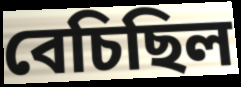
বেচিছিল